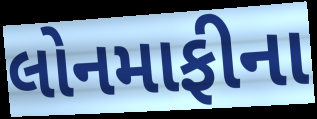
લોનમાફીના